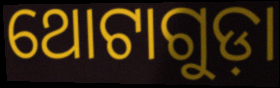
ଥୋଟାଗୁଡ଼ା